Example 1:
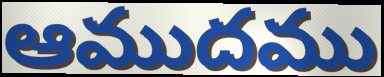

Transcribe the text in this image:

ఆముదము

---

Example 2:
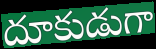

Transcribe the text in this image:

దూకుడుగా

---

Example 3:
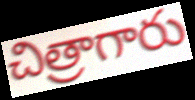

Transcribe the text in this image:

చిత్రాగారు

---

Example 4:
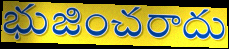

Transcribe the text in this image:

భుజించరాదు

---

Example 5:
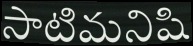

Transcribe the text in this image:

సాటిమనిషి